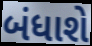
બંધાશે